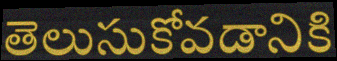
తెలుసుకోవడానికి